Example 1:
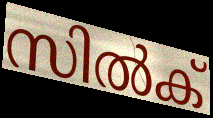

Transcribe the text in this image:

സിൽക്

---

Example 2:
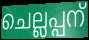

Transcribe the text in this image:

ചെല്ലപ്പന്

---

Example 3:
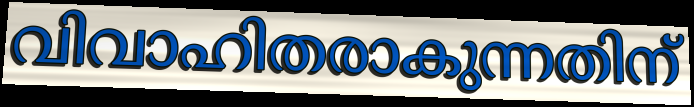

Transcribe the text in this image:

വിവാഹിതരാകുന്നതിന്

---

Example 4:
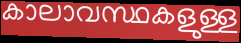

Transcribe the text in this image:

കാലാവസ്ഥകളുള്ള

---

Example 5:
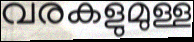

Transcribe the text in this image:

വരകളുമുള്ള